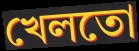
খেলতো